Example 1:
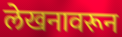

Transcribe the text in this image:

लेखनावरून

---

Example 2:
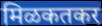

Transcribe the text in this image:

मिळकतकर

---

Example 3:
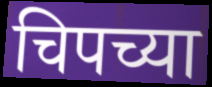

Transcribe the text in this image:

चिपच्या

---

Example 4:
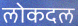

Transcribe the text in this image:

लोकदल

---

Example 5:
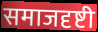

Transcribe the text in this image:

समाजदृष्टी